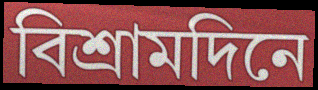
বিশ্রামদিনে